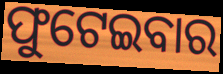
ଫୁଟେଇବାର